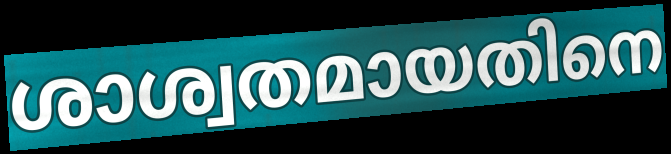
ശാശ്വതമായതിനെ